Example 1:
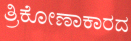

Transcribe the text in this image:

ತ್ರಿಕೋಣಾಕಾರದ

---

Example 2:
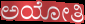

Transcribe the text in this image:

ಅಯೋತಿ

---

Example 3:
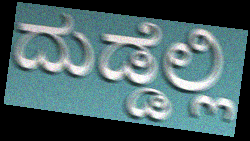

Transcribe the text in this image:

ದುಡ್ಡೆಲ್ಲಿ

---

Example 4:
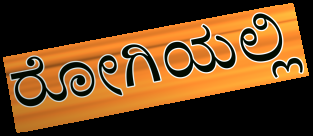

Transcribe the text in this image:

ರೋಗಿಯಲ್ಲಿ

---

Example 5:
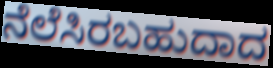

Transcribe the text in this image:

ನೆಲೆಸಿರಬಹುದಾದ